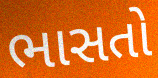
ભાસતો